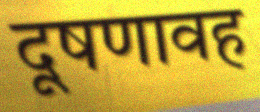
दूषणावह